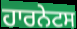
ਹਾਰਨੇਟਸ